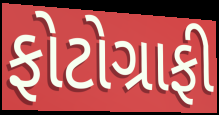
ફોટોગ્રાફી